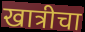
खात्रीचा